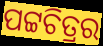
ପଟ୍ଟଚିତ୍ରର